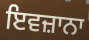
ਇਵਜ਼ਾਨਾ